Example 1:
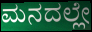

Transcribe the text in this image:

ಮನದಲ್ಲೇ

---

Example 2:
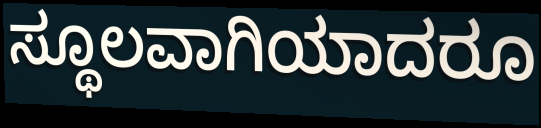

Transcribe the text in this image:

ಸ್ಥೂಲವಾಗಿಯಾದರೂ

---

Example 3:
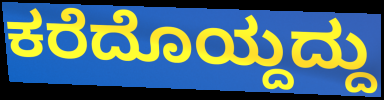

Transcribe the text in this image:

ಕರೆದೊಯ್ದದ್ದು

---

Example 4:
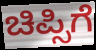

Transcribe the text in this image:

ಚಿಪ್ಸಿಗೆ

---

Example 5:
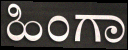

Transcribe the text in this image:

ಹಿಂಗಾ